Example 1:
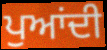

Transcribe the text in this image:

ਪੁਆਂਦੀ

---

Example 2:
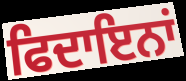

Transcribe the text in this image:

ਫਿਦਾਇਨਾਂ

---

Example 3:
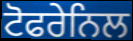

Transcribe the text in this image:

ਟੋਫਰੇਨਿਲ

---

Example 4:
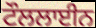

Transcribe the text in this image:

ਟੌਲਲਾਈਨ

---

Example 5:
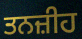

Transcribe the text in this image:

ਤਨਜ਼ੀਹ